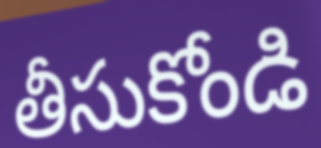
తీసుకోండి